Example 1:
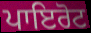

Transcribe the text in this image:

ਪਾਇਰੋਟ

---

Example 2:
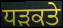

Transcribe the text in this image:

ਧੜਕਤੇ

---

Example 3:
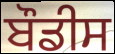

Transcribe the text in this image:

ਬੌਡੀਸ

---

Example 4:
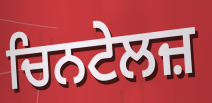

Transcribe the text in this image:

ਚਿਨਟੇਲਜ਼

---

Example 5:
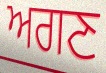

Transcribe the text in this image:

ਅਗਣ